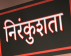
निरंकुशता